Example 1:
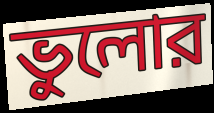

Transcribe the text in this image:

ভুলোর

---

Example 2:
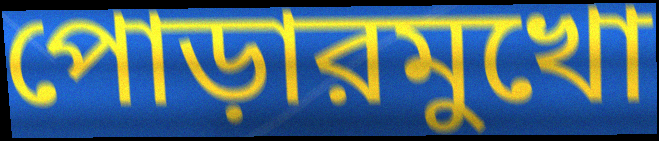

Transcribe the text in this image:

পোড়ারমুখো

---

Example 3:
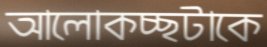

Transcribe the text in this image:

আলোকচ্ছটাকে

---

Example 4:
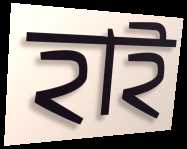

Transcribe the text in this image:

হাই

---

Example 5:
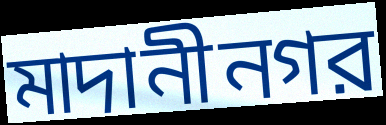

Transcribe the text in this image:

মাদানীনগর